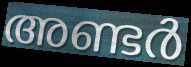
അണ്ടർ